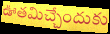
ఊతమిచ్చేందుకు